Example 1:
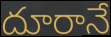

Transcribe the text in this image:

దూరానే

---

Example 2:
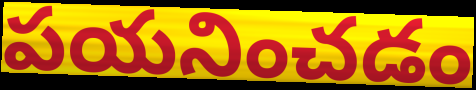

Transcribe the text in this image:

పయనించడం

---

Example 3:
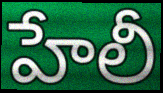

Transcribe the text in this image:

హేలీ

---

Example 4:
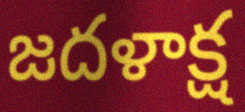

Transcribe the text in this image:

జదళాక్ష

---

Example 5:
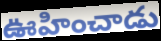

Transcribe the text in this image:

ఊహించాడు